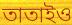
তাতাইও